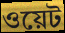
ওয়েট